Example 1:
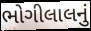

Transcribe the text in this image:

ભોગીલાલનું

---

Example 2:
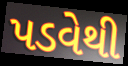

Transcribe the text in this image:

પડવેથી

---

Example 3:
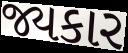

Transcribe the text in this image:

જ્યકાર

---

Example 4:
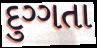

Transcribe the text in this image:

દુગ્ગતા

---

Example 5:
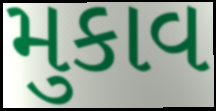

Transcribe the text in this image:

મુકાવ